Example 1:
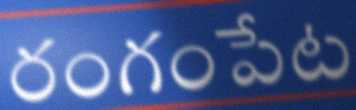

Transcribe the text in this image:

రంగంపేట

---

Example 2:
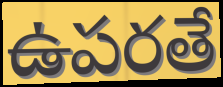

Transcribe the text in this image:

ఉపరతే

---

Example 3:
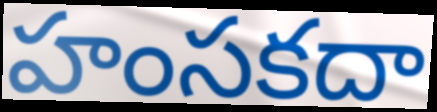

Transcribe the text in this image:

హంసకదా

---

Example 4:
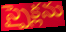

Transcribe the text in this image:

స్పైక్లను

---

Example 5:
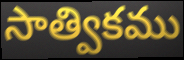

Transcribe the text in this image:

సాత్వికము